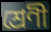
শ্রেণী